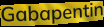
Gabapentin